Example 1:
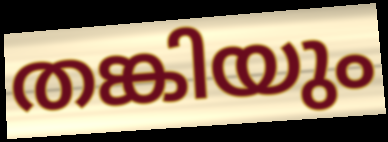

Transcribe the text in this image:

തങ്കിയും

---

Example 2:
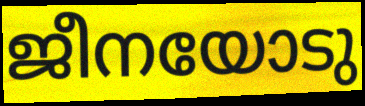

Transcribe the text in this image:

ജീനയോടു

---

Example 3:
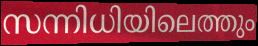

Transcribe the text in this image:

സന്നിധിയിലെത്തും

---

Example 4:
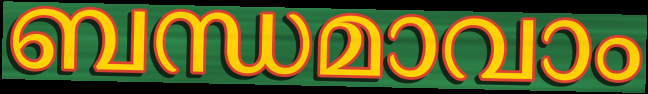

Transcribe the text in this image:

ബന്ധമാവാം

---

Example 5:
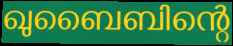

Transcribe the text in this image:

ഖുബൈബിന്റെ